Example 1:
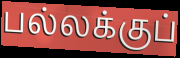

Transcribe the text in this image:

பல்லக்குப்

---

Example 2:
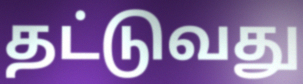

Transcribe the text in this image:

தட்டுவது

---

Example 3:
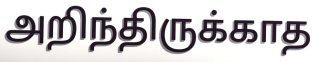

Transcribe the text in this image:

அறிந்திருக்காத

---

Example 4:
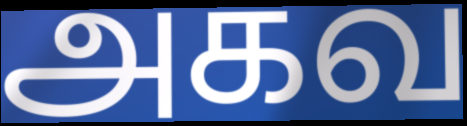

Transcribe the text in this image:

அகவ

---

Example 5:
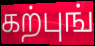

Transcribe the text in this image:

கற்புங்